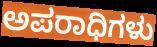
ಅಪರಾಧಿಗಳು